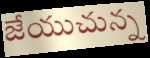
జేయుచున్న